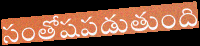
సంతోషపడుతుంది